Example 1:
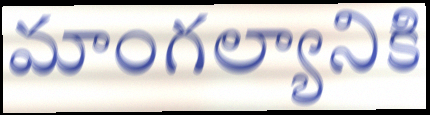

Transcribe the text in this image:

మాంగల్యానికి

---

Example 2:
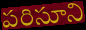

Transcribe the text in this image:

పరిసూని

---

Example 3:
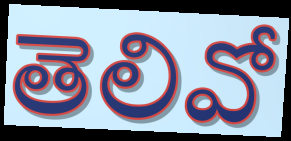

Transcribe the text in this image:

తెలివో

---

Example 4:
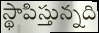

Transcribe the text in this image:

స్థాపిస్తున్నది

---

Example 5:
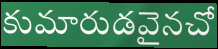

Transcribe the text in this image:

కుమారుడవైనచో